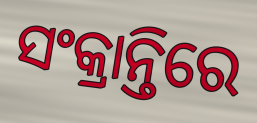
ସଂକ୍ରାନ୍ତିରେ